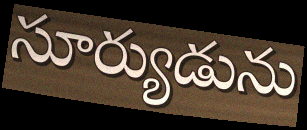
సూర్యుడును